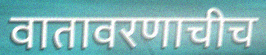
वातावरणाचीच